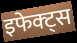
इफेक्‍ट्स